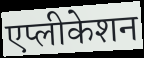
एप्‍लीकेशन